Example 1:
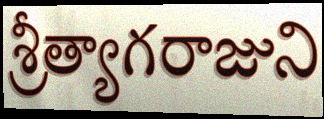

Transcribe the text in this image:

శ్రీత్యాగరాజుని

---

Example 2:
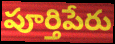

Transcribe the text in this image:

పూర్తిపేరు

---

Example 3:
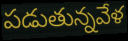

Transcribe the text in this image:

పడుతున్నవేళ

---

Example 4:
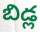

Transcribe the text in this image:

బిడ్ల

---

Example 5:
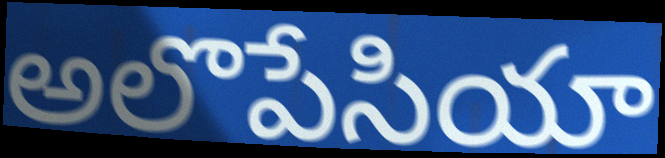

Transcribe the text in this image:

అలొపేసియా